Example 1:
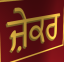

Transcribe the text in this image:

ਜ਼ੇਕਰ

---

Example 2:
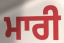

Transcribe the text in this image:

ਮਾਰੀ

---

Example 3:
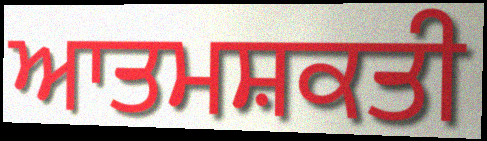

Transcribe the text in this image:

ਆਤਮਸ਼ਕਤੀ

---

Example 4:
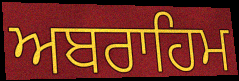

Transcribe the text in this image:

ਅਬਰਾਹਿਮ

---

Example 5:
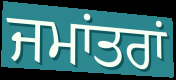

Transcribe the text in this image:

ਜਮਾਂਤਰਾਂ